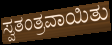
ಸ್ವತಂತ್ರವಾಯಿತು